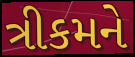
ત્રીકમને